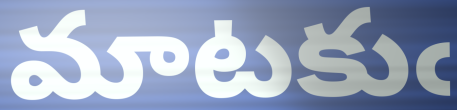
మాటకుఁ